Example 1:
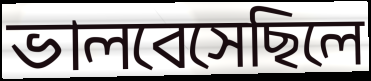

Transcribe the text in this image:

ভালবেসেছিলে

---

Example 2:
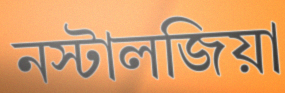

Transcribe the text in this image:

নস্টালজিয়া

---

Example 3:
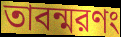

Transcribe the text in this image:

তাবন্মরণং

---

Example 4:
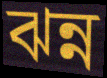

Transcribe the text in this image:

ঝন্ন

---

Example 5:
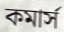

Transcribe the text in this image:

কমার্স